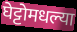
घेट्टोमधल्या